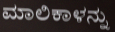
ಮಾಲಿಕಾಳನ್ನು